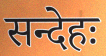
सन्देहः